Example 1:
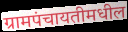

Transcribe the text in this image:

ग्रामपंचायतीमधील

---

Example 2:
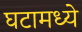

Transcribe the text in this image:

घटामध्ये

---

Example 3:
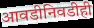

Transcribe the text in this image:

आवडीनिवडीही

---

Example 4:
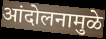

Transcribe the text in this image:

आंदोलनामुळे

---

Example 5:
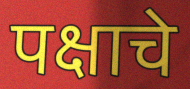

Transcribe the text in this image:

पक्षाचे